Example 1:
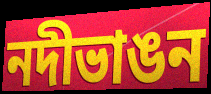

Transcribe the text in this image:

নদীভাঙন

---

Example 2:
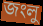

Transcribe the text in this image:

জংলু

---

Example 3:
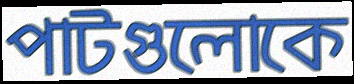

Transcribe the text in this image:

পাটগুলোকে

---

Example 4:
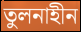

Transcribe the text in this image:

তুলনাহীন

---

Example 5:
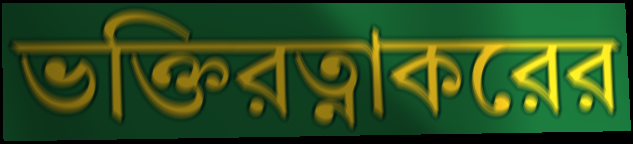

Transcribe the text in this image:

ভক্তিরত্নাকরের